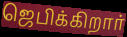
ஜெபிக்கிறார்